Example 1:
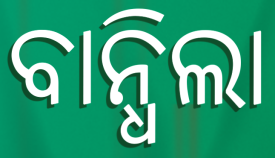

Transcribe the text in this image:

ବାନ୍ଧିଲା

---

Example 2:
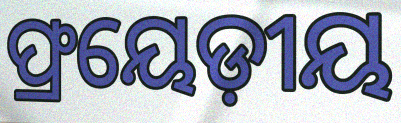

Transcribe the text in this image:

ଫ୍ରୟେଡ଼ୀୟ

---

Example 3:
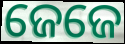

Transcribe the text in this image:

ଜେଜେ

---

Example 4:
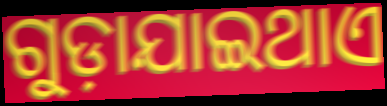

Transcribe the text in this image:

ଗୁଡ଼ାଯାଇଥାଏ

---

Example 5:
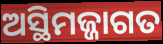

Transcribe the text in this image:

ଅସ୍ଥିମଜ୍ଜାଗତ